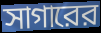
সাগারের